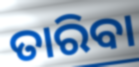
ତାରିବା